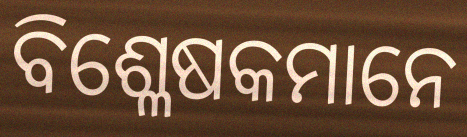
ବିଶ୍ଳେଷକମାନେ